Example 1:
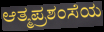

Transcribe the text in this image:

ಆತ್ಮಪ್ರಶಂಸೆಯ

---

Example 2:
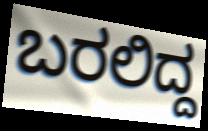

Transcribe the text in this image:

ಬರಲಿದ್ದ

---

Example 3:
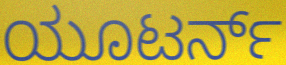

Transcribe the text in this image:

ಯೂಟರ್ನ್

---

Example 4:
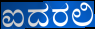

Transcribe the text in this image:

ಐದರಲಿ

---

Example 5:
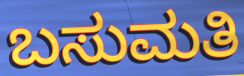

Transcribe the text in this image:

ಬಸುಮತಿ